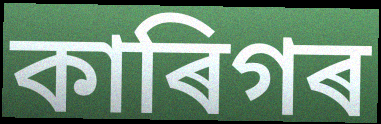
কাৰিগৰ